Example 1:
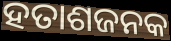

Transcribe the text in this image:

ହତାଶଜନକ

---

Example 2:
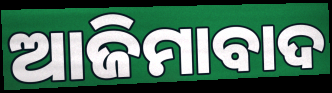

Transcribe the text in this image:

ଆଜିମାବାଦ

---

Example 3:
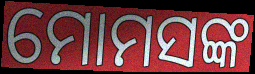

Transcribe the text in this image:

ମୋମସଙ୍କ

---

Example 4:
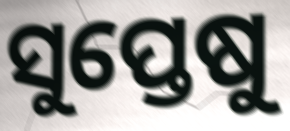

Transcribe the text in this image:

ସୁପ୍ତେଷୁ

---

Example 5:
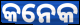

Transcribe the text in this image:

କନେକ